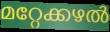
മറ്റേക്കഴൽ